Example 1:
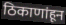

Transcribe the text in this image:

ठिकाणांहून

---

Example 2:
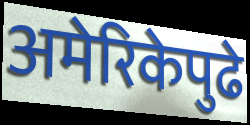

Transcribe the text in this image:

अमेरिकेपुढे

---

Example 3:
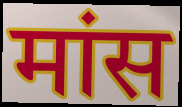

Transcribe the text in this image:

मांस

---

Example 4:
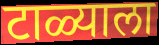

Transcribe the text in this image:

टाळ्याला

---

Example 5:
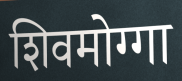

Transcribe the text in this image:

शिवमोग्गा